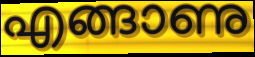
എങ്ങാണു